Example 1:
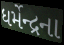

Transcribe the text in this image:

ધર્મેન્દ્રના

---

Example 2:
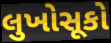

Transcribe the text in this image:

લુખોસૂકો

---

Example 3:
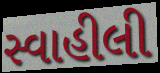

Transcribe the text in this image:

સ્વાહીલી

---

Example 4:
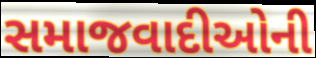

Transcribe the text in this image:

સમાજવાદીઓની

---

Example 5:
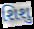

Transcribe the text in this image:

શિશુ